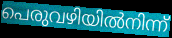
പെരുവഴിയിൽനിന്ന്